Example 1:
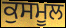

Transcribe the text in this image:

ਕੁਸਮੂਲ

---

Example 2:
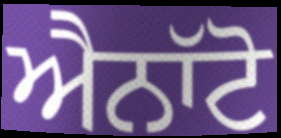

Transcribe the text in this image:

ਐਨਾੱਟੋ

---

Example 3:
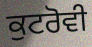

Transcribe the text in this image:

ਕੁਟਰੋਵੀ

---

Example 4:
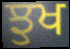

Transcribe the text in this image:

ਝੁਖ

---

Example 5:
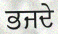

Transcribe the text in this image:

ਭਜਦੇ